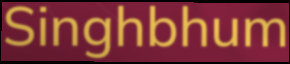
Singhbhum